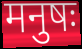
मनुषः